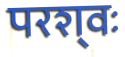
परश्वः